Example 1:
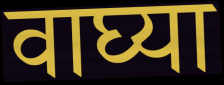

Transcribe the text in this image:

वाघ्या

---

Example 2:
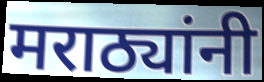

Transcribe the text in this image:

मराठ्यांनी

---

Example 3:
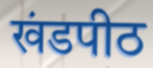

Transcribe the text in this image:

खंडपीठ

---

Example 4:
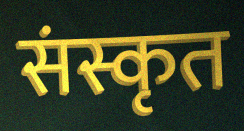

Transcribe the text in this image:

संस्‍कृत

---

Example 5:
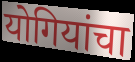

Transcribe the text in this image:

योगियांचा